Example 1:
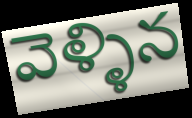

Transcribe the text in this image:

వెళ్ళిన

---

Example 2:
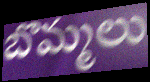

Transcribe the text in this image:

బొమ్మలు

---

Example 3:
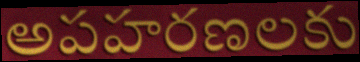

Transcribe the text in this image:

అపహరణలకు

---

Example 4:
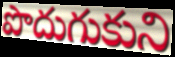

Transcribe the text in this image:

పొదుగుకుని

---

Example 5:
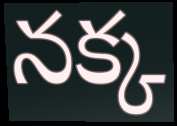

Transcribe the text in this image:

నక్క